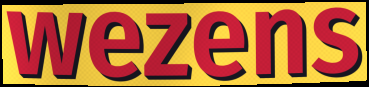
wezens